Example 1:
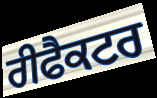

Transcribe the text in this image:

ਰੀਫੈਕਟਰ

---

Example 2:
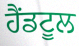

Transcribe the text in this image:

ਹੈਂਡਟੂਲ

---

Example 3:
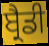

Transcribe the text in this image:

ਬ੍ਰੈਡੀ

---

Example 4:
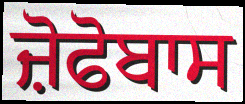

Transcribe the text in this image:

ਜ਼ੋਫੋਬਾਸ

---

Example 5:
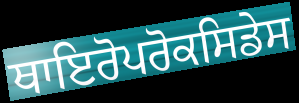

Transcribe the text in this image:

ਥਾਇਰੋਪਰੋਕਸਿਡੇਸ